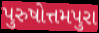
પુરુષોત્તમપુરા